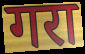
गरा